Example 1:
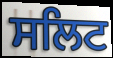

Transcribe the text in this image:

ਸਲਿਟ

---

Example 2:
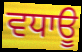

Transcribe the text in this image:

ਵਧਾਊ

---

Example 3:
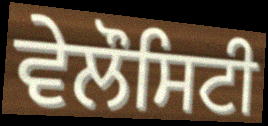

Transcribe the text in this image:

ਵੇਲੌਸਿਟੀ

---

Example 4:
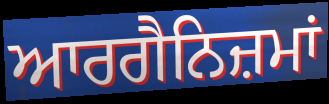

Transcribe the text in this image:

ਆਰਗੈਨਿਜ਼ਮਾਂ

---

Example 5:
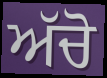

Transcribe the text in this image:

ਅੱਚੋ